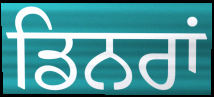
ਡਿਨਰਾਂ